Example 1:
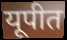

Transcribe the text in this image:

यूपीत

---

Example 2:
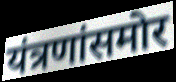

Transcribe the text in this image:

यंत्रणांसमोर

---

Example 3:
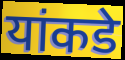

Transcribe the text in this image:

यांकडे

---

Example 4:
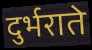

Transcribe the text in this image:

दुर्भराते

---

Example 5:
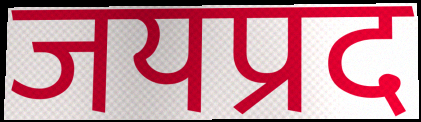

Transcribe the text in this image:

जयप्रद